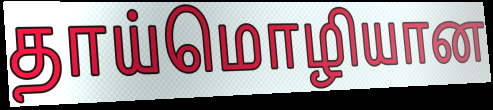
தாய்மொழியான